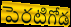
పెరటిగోడ